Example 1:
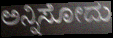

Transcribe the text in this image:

ಅನ್ನಿಸೋದು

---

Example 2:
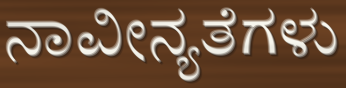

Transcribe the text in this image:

ನಾವೀನ್ಯತೆಗಳು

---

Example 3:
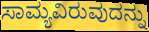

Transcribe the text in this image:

ಸಾಮ್ಯವಿರುವುದನ್ನು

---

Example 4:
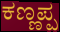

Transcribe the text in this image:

ಕಣ್ಣಪ್ಪ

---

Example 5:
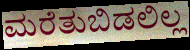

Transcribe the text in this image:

ಮರೆತುಬಿಡಲಿಲ್ಲ